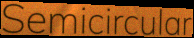
Semicircular